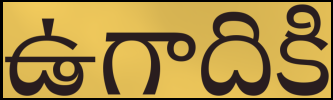
ఉగాదికి